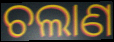
ଚଲାଣ